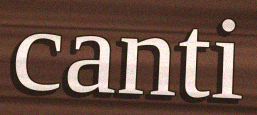
canti